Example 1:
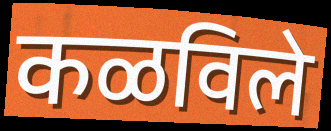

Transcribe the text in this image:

कळविले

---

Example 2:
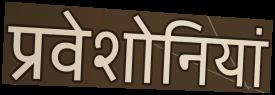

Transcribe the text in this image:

प्रवेशोनियां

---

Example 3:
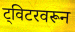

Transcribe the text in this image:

ट्विटरवरून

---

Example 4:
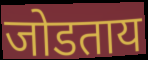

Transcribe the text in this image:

जोडताय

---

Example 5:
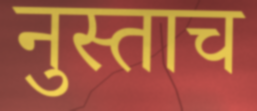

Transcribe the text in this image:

नुस्ताच